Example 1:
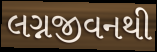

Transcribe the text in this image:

લગ્નજીવનથી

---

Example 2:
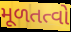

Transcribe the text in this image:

મૂળતત્વો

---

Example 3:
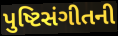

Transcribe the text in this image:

પુષ્ટિસંગીતની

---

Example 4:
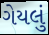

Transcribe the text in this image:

ગેયલું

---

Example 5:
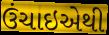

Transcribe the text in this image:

ઉંચાઇએથી